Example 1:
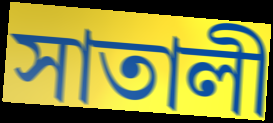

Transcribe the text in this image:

সাতালী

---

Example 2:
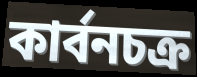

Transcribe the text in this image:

কার্বনচক্র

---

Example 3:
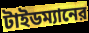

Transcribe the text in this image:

টাইডম্যানের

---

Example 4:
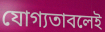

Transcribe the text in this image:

যোগ্যতাবলেই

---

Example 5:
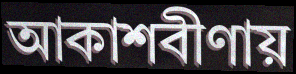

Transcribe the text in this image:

আকাশবীণায়